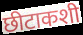
छीटाकशी